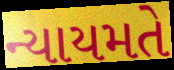
ન્યાયમતે